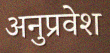
अनुप्रवेश